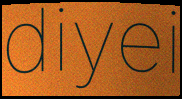
diyei